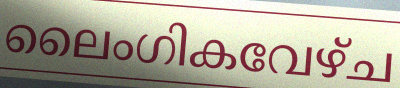
ലൈംഗികവേഴ്ച